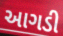
આગડી